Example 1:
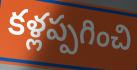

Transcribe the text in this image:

కళ్లప్పగించి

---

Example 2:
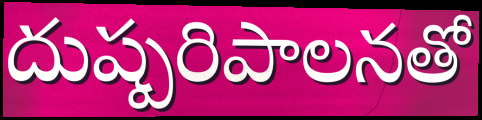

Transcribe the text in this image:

దుష్పరిపాలనతో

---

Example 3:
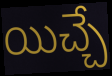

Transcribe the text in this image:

యిచ్చే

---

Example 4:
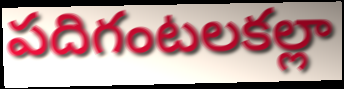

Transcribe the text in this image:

పదిగంటలకల్లా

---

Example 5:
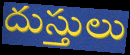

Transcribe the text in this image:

దుస్తులు